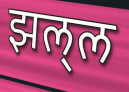
झल्ल